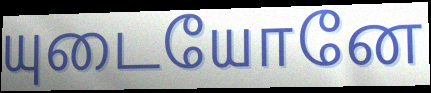
யுடையோனே